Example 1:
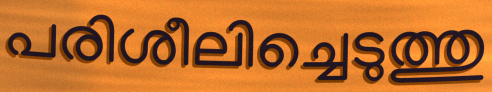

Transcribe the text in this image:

പരിശീലിച്ചെടുത്തു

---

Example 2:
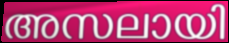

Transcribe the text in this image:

അസലായി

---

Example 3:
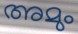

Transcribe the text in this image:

അമും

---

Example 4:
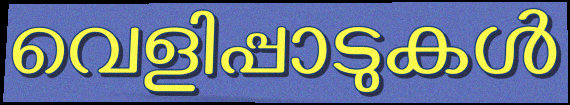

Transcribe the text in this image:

വെളിപ്പാടുകൾ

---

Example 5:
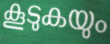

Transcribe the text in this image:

കൂടുകയും